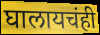
घालायचंही